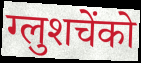
ग्लुशचेंको